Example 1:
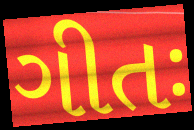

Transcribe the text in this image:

ગીતઃ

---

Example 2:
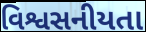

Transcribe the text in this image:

વિશ્વસનીયતા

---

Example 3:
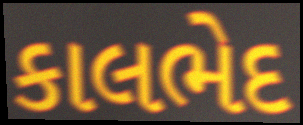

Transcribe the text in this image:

કાલભેદ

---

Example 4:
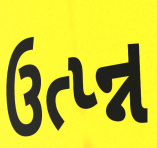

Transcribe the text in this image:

ઉત્પ્ન્ન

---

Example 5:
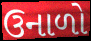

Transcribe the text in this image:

ઉનાળો